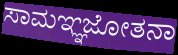
ಸಾಮಞ್ಞಜೋತನಾ